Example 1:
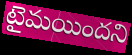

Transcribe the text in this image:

టైమయిందని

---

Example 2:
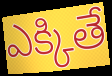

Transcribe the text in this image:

ఎక్కితే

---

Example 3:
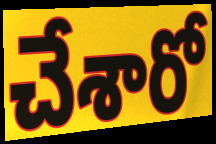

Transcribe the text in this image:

చేశారో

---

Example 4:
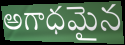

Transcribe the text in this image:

అగాధమైన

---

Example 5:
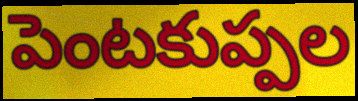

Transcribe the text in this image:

పెంటకుప్పల